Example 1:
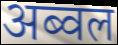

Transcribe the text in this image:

अब्वल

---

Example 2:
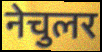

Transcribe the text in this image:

नेचुलर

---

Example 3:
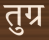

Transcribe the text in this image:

तुग्र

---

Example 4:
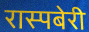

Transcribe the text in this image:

रास्पबेरी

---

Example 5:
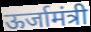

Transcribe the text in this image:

ऊर्जामंत्री